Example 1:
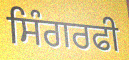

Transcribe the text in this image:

ਸਿੰਗਰਫੀ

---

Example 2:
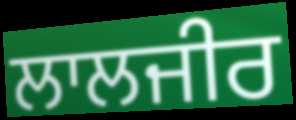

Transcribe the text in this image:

ਲਾਲਜੀਰ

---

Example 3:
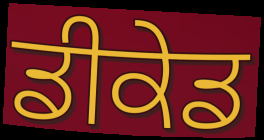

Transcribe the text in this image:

ਡੀਕੇਡ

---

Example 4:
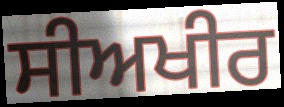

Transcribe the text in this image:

ਸੀਅਖੀਰ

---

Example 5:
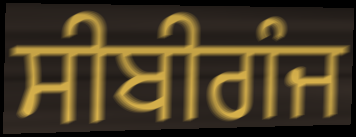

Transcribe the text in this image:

ਸੀਬੀਗੰਜ